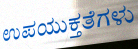
ಉಪಯುಕ್ತತೆಗಳು